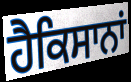
ਹੈਕਿਸਾਨਾਂ